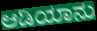
ಆಡಿಯಾನು